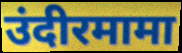
उंदीरमामा